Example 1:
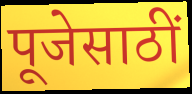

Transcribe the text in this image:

पूजेसाठीं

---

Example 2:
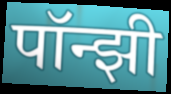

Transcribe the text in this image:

पॉन्झी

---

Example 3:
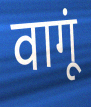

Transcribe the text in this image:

वागूं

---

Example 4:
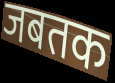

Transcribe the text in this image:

जबतक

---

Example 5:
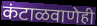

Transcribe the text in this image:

कंटाळवाणेही